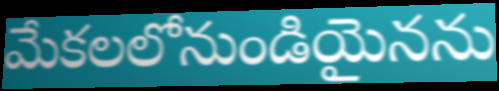
మేకలలోనుండియైనను